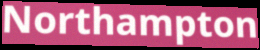
Northampton